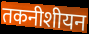
तकनीशीयन